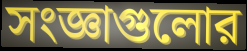
সংজ্ঞাগুলোর